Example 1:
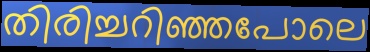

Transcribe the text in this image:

തിരിച്ചറിഞ്ഞപോലെ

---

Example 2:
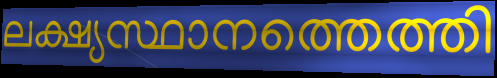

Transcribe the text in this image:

ലക്ഷ്യസ്ഥാനത്തെത്തി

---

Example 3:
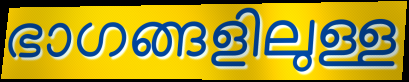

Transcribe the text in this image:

ഭാഗങ്ങളിലുള്ള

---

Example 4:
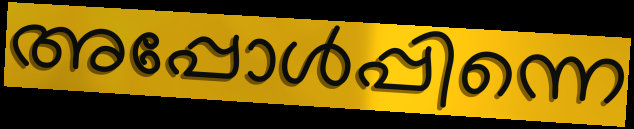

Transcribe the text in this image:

അപ്പോൾപ്പിന്നെ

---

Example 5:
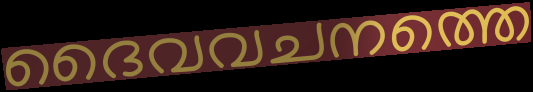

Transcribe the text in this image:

ദൈവവചനത്തെ